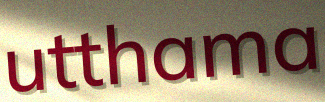
utthama